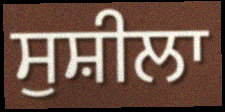
ਸੁਸ਼ੀਲਾ